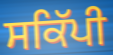
ਸਕਿੱਪੀ